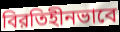
বিরতিহীনভাবে